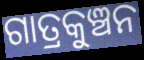
ଗାତ୍ରକୁଞ୍ଚନ